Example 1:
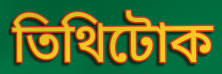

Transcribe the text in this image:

তিথিটোক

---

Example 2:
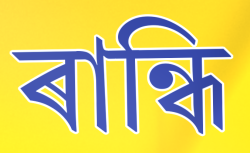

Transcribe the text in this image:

ৰান্ধি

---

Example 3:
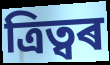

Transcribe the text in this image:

ত্ৰিত্বৰ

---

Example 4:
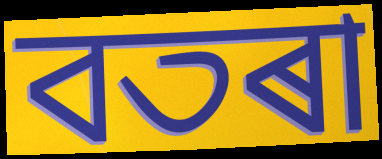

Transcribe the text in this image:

বতৰা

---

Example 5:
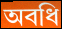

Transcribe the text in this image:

অবধি